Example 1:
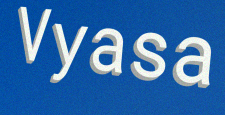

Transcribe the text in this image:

Vyasa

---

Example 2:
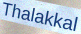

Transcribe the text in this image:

Thalakkal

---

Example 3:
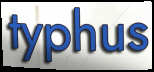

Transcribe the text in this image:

typhus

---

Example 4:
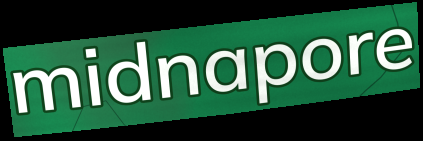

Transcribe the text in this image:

midnapore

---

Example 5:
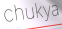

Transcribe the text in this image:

chukya